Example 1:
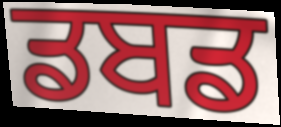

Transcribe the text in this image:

ਡਬਡ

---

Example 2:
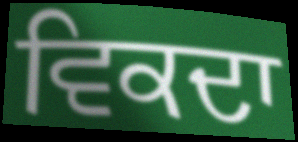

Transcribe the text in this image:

ਵਿਕਦਾ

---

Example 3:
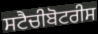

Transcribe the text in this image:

ਸਟੈਚੀਬੋਟਰੀਸ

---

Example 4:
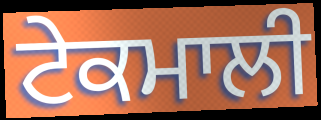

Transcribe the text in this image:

ਟੇਕਮਾਲੀ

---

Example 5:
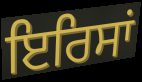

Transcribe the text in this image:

ਇਰਿਸਾਂ